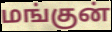
மங்குன்